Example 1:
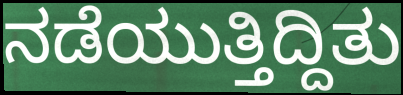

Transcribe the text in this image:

ನಡೆಯುತ್ತಿದ್ದಿತು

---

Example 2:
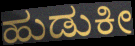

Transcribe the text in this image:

ಹುಡುಕೀ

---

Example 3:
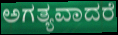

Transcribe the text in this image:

ಅಗತ್ಯವಾದರೆ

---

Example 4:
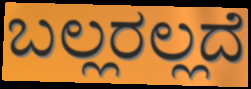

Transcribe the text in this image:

ಬಲ್ಲರಲ್ಲದೆ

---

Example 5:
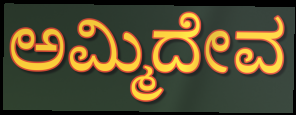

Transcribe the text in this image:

ಅಮ್ಮಿದೇವ